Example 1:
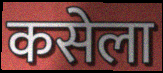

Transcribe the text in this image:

कसेला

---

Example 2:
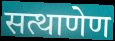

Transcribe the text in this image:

सत्थाणेण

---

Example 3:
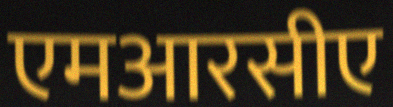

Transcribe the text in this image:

एमआरसीए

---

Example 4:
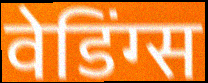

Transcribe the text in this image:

वेडिंग्स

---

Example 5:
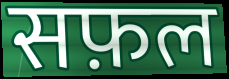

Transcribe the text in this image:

सफ़ल